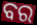
ବର